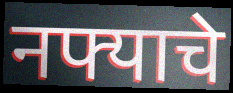
नफ्याचे